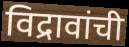
विद्रावांची